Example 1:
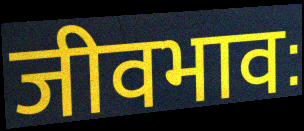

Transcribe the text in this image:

जीवभावः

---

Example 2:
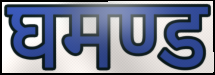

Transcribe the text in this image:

घमण्ड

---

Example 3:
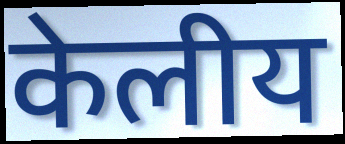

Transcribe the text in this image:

केलीय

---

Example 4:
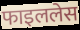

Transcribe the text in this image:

फाइललेस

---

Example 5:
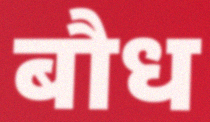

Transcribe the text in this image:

बौध